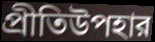
প্রীতিউপহার